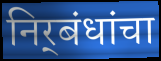
निर्बंधांचा